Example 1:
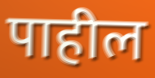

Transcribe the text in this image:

पाहील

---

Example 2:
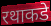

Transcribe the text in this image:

रथाकडे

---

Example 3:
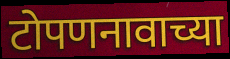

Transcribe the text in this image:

टोपणनावाच्या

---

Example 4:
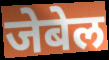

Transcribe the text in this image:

जेबेल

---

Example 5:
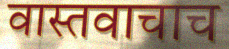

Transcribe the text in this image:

वास्तवाचाच